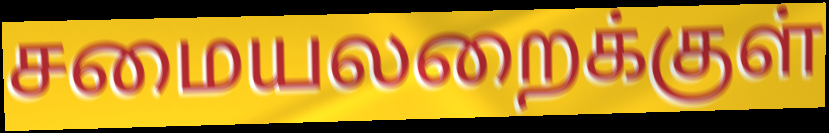
சமையலறைக்குள்